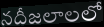
నదీజలాలలో